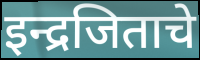
इन्द्रजिताचे